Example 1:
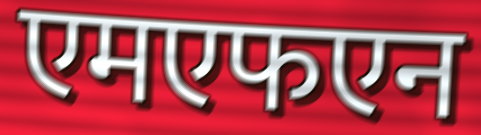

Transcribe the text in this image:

एमएफएन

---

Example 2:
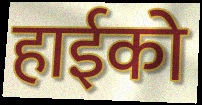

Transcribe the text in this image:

हाईको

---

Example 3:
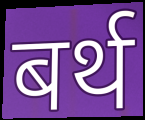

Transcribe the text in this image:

बर्थ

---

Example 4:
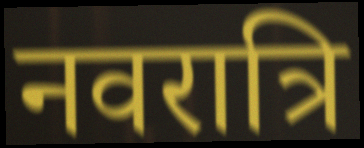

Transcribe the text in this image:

नवरात्रि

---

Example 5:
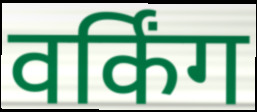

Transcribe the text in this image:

वर्किंग